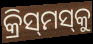
କ୍ରିସ୍‌ମସ୍‌କୁ